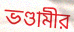
ভণ্ডামীর